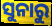
ସୁନାରୁ